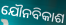
ଯୌନବିକାଶ